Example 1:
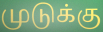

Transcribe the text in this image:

முடுக்கு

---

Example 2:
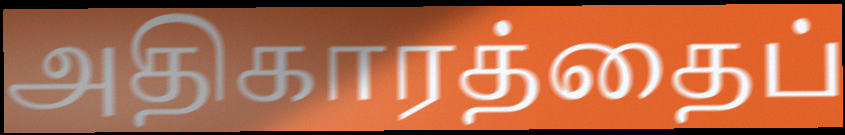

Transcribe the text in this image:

அதிகாரத்தைப்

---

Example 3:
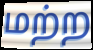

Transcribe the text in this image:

மற்ற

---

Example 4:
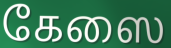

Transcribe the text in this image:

கேஸை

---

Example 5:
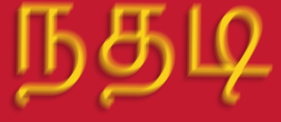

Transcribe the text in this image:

நதடி